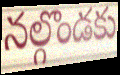
నల్గొండకు